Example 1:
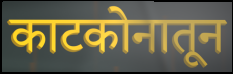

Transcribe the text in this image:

काटकोनातून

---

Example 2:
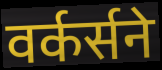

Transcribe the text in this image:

वर्कर्सने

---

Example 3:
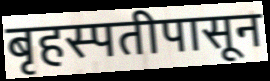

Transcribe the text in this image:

बृहस्पतीपासून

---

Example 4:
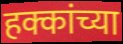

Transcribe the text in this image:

हक्कांच्या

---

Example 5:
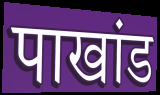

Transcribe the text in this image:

पाखांड